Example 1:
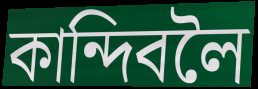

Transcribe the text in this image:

কান্দিবলৈ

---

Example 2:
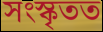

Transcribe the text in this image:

সংস্কৃতত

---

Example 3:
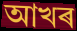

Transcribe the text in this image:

আখৰ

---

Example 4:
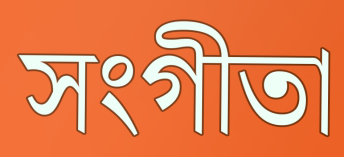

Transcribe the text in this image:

সংগীতা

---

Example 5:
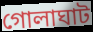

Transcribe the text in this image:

গোলাঘাট